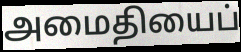
அமைதியைப்